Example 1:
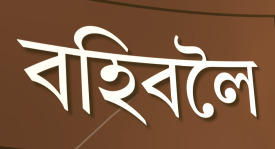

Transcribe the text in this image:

বহিবলৈ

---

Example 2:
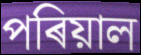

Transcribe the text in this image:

পৰিয়াল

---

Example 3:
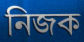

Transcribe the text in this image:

নিজক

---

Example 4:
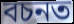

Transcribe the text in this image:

বচনত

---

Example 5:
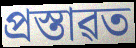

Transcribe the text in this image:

প্ৰস্তাৱত